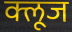
क्लूज